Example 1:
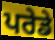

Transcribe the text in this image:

ਪਰੇਡੇ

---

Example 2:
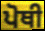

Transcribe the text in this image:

ਪੋਥੀ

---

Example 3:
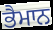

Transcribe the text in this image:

ਭੈਮਾਨ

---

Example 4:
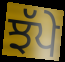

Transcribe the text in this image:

ਝੱਪੇ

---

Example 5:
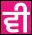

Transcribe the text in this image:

ਵੀ